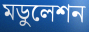
মডুলেশন